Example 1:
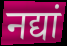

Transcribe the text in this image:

नद्यां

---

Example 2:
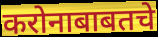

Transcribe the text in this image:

करोनाबाबतचे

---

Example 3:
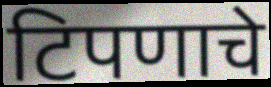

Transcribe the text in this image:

टिपणाचे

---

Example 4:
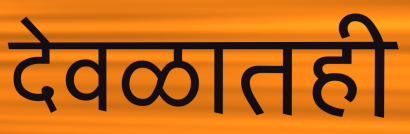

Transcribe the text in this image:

देवळातही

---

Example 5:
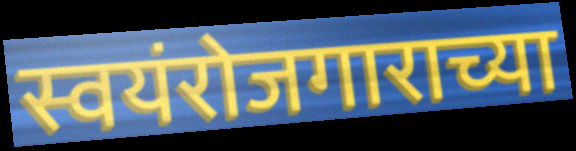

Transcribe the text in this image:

स्वयंरोजगाराच्या